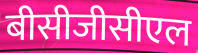
बीसीजीसीएल